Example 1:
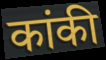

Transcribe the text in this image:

कांकी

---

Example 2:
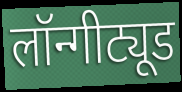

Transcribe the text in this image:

लॉन्गीट्यूड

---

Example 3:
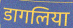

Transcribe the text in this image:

डागलिया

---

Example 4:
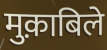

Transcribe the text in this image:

मुक़ाबिले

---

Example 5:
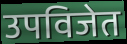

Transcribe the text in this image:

उपविजेत